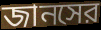
জানসের